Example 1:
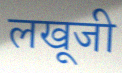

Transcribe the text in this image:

लखूजी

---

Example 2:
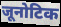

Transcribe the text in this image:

जूनोटिक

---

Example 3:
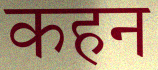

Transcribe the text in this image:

कहन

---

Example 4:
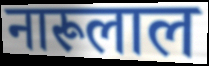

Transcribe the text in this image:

नारूलाल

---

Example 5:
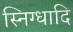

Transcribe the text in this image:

स्निग्धादि